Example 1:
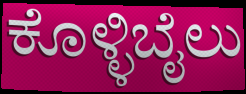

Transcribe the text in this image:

ಕೊಳ್ಳಿಬೈಲು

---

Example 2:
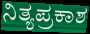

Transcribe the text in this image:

ನಿತ್ಯಪ್ರಕಾಶ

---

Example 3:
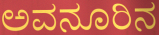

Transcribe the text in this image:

ಅವನೂರಿನ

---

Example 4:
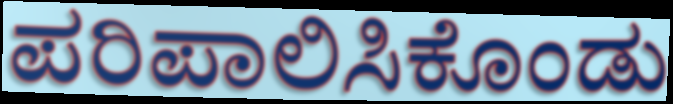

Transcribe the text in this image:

ಪರಿಪಾಲಿಸಿಕೊಂಡು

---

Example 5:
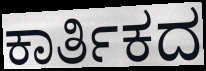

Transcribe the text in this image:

ಕಾರ್ತಿಕದ